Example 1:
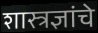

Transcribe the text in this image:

शास्त्रज्ञांचे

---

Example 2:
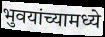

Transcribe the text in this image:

भुवयांच्यामध्ये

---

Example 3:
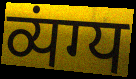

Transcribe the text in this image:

व्यंग्य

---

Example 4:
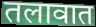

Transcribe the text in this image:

तलावात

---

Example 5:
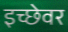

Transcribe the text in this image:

इच्छेवर